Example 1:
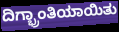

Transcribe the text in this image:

ದಿಗ್ಭ್ರಾಂತಿಯಾಯಿತು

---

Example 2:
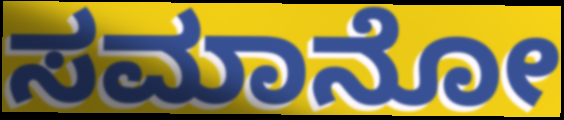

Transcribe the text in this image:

ಸಮಾನೋ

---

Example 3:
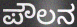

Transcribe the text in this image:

ಪೌಲನ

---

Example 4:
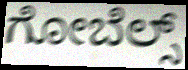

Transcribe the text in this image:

ಗೋಬೆಲ್ಸ್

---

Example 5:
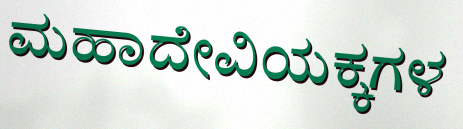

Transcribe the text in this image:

ಮಹಾದೇವಿಯಕ್ಕಗಳ